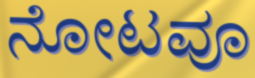
ನೋಟವೂ